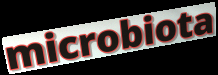
microbiota